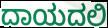
ದಾಯದಲಿ